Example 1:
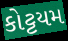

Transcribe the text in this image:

કોટ્ટયમ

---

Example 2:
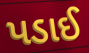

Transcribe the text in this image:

પડાઈ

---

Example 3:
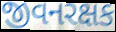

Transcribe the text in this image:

જીવનરક્ષક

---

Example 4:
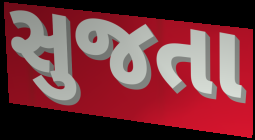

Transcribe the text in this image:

સુજતા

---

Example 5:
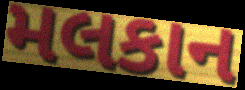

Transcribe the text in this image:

મલકાન